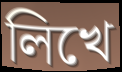
লিখে